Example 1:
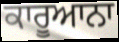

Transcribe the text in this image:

ਕਾਰੂਆਨਾ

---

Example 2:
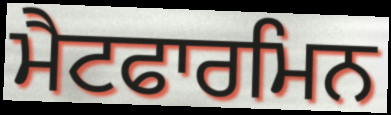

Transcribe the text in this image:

ਮੈਟਫਾਰਮਿਨ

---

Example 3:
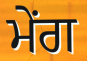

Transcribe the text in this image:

ਮੇਂਗ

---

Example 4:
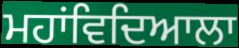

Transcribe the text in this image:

ਮਹਾਂਵਿਦਿਆਲਾ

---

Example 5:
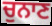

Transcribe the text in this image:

ਚੁਨਾਣ